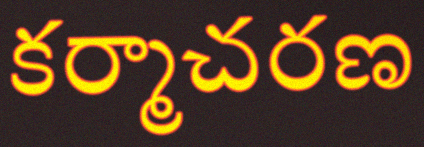
కర్మాచరణ